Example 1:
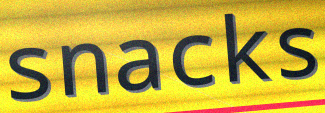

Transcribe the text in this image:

snacks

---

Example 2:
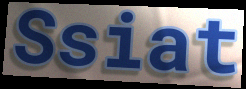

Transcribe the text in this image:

Ssiat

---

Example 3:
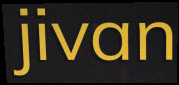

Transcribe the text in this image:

jivan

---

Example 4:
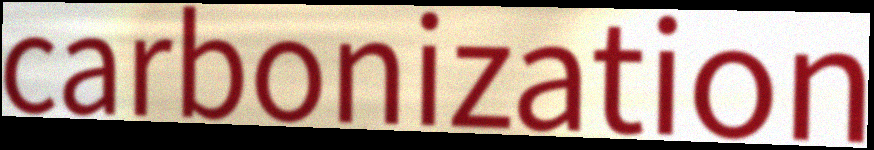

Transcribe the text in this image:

carbonization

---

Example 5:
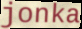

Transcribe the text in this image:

jonka